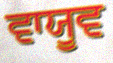
ਵਾਯੂਵ